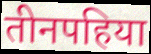
तीनपहिया